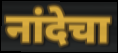
नांदेचा